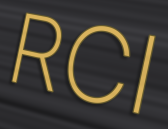
RCl